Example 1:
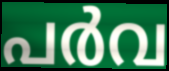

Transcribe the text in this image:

പർവ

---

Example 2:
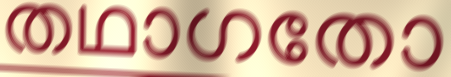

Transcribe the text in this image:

തഥാഗതോ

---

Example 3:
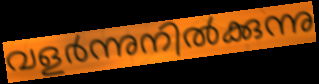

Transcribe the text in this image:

വളർന്നുനിൽക്കുന്നു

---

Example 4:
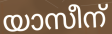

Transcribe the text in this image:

യാസീന്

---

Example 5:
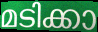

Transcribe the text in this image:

മടിക്കാ